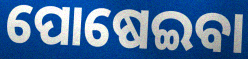
ପୋଷେଇବା